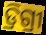
ଡ୍ରିଗ୍ରୀ